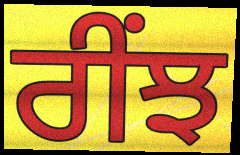
ਰੀਂਝ